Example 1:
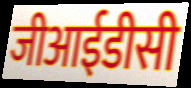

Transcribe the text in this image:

जीआईडीसी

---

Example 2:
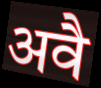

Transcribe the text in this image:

अवै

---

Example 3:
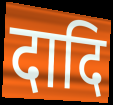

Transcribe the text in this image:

दादि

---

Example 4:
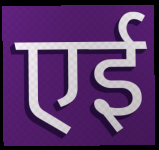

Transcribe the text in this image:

एई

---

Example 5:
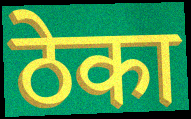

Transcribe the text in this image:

ठेका